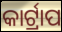
କାର୍ଟ୍ରାପ